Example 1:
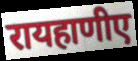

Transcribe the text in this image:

रायहाणीए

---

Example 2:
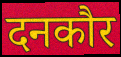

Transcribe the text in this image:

दनकौर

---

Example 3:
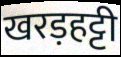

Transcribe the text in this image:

खरड़हट्टी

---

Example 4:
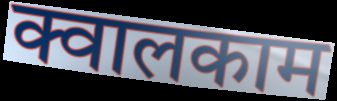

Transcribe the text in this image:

क्वालकाम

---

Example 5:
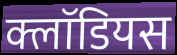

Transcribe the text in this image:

क्लॉडियस